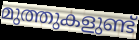
മുത്തുകളുണ്ട്